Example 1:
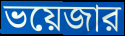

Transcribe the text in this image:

ভয়েজার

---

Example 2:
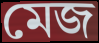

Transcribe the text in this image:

মেজ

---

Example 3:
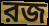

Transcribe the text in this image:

রজ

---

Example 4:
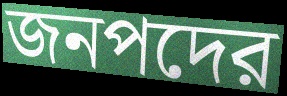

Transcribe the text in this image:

জনপদের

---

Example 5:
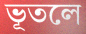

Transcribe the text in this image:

ভূতলে